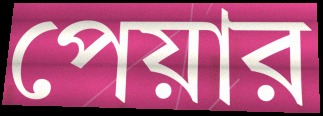
পেয়ার